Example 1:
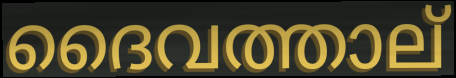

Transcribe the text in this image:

ദൈവത്താല്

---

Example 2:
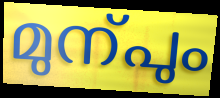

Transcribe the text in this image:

മുന്പും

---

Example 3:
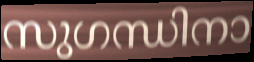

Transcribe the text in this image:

സുഗന്ധിനാ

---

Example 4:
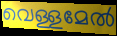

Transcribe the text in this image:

വെള്ളമേൽ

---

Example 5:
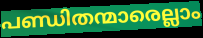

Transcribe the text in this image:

പണ്ഡിതന്മാരെല്ലാം